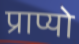
प्राप्यो